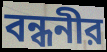
বন্ধনীর